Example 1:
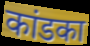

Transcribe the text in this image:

कांडका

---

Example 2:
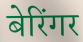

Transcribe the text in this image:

बेरिंगर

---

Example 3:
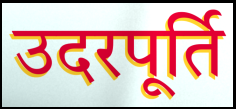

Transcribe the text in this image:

उदरपूर्ति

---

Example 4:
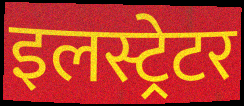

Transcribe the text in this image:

इलस्ट्रेटर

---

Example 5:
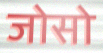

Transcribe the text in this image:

जोसो